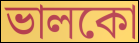
ভালকো